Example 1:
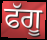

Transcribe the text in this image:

ਫੱਗੂ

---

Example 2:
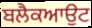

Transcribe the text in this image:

ਬਲੈਕਆਉਟ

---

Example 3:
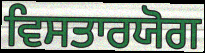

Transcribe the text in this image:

ਵਿਸਤਾਰਯੋਗ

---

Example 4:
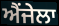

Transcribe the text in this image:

ਐਂਜੇਲਾ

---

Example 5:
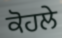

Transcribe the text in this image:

ਕੋਹਲੇ